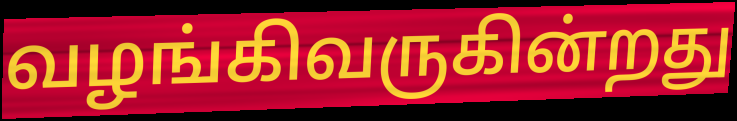
வழங்கிவருகின்றது